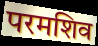
परमशिव